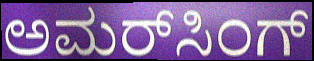
ಅಮರ್‌ಸಿಂಗ್